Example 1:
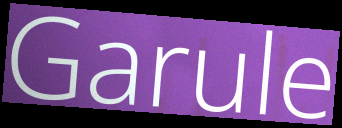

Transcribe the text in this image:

Garule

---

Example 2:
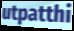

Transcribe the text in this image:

utpatthi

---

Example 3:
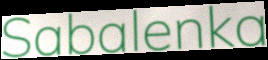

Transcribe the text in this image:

Sabalenka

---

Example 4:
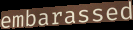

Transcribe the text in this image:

embarassed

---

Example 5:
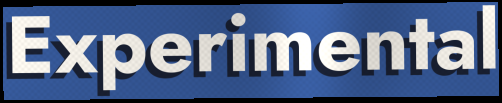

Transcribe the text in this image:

Experimental